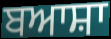
ਬਆਸ਼ਾ